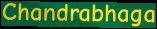
Chandrabhaga